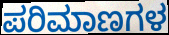
ಪರಿಮಾಣಗಳ